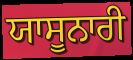
ਯਾਸੂਨਾਰੀ